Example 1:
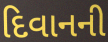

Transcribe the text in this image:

દિવાનની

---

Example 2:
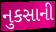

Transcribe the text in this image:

નુકસાની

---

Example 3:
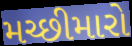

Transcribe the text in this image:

મચ્છીમારો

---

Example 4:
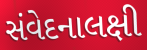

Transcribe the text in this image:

સંવેદનાલક્ષી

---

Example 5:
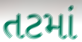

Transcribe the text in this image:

તટમાં